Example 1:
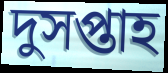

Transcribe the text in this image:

দুসপ্তাহ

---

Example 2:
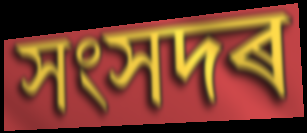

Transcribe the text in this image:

সংসদৰ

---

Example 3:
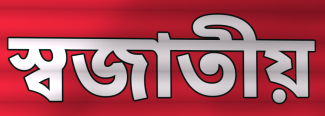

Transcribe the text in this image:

স্বজাতীয়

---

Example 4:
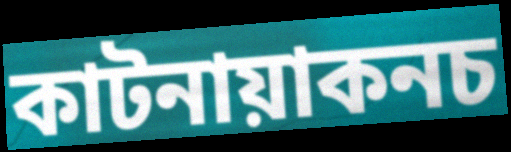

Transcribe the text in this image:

কাটনায়াকনচ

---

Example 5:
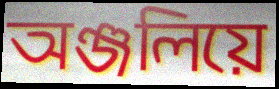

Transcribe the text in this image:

অঞ্জলিয়ে